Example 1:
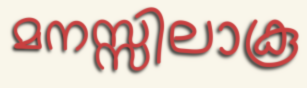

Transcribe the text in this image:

മനസ്സിലാകൂ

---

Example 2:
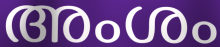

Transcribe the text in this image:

അംശം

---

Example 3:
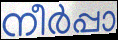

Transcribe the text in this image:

നീർപ്പാ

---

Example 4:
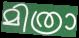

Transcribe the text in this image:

മിത്രാ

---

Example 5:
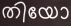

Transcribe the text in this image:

തിയോ